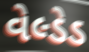
વેલ્ડેડ